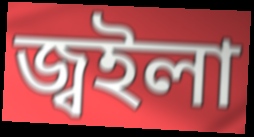
জ্বইলা